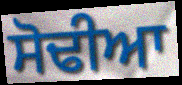
ਸੋਢੀਆ